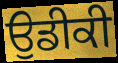
ਉਡੀਕੀ